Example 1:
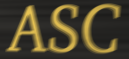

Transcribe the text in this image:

ASC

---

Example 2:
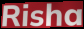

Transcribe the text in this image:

Risha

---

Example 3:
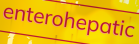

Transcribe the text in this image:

enterohepatic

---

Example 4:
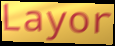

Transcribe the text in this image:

Layor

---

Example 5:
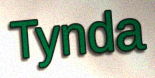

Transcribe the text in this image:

Tynda